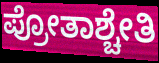
ಪ್ರೋತಾಶ್ಚೇತಿ